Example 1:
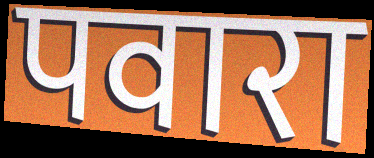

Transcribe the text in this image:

पवारा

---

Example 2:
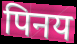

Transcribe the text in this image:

पिनय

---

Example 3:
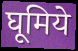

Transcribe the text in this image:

घूमिये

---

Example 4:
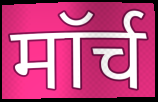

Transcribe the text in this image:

मॉर्च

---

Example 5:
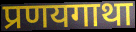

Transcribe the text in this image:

प्रणयगाथा